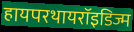
हायपरथायरॉइडिज्म